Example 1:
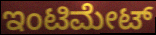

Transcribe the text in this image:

ಇಂಟಿಮೇಟ್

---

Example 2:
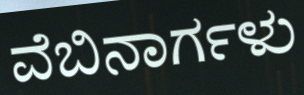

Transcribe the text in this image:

ವೆಬಿನಾರ್ಗಳು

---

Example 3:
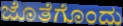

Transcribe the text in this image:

ಜೊತೆಗೊಂದು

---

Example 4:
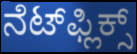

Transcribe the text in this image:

ನೆಟ್‌ಫ್ಲಿಕ್ಸ್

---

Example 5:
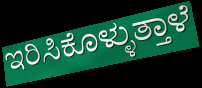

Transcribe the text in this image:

ಇರಿಸಿಕೊಳ್ಳುತ್ತಾಳೆ